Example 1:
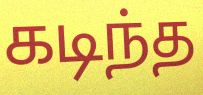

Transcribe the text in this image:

கடிந்த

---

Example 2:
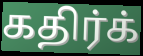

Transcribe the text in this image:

கதிர்க்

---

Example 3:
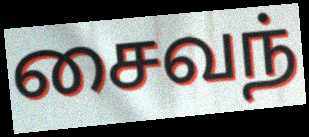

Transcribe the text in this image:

சைவந்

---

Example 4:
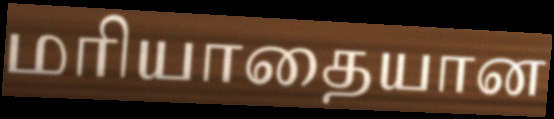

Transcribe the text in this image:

மரியாதையான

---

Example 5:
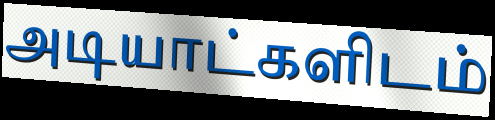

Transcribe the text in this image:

அடியாட்களிடம்